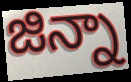
జిన్నా